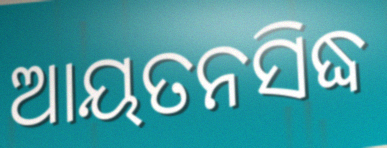
ଆୟତନସିଦ୍ଧ